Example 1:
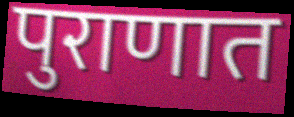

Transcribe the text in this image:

पुराणात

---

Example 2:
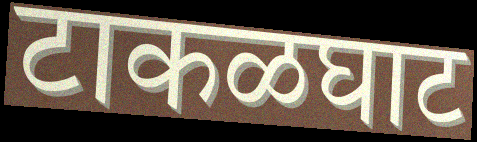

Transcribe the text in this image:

टाकळघाट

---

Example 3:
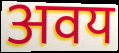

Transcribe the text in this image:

अवय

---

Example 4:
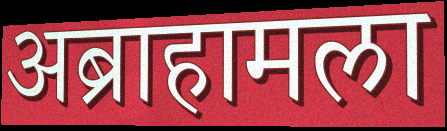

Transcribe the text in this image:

अब्राहामला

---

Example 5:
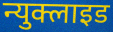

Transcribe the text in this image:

न्युक्लाइड